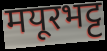
मयूरभट्ट